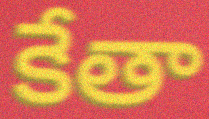
కేతా